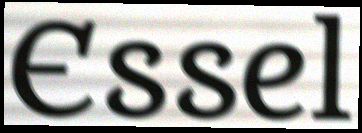
Essel